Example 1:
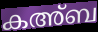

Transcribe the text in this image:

കഅ്ബ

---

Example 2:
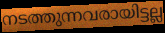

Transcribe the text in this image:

നടത്തുന്നവരായിട്ടല്ല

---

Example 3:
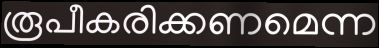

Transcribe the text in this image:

രൂപീകരിക്കണമെന്ന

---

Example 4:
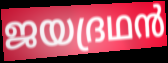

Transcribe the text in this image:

ജയദ്രഥൻ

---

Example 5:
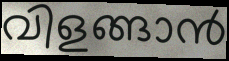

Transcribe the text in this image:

വിളങ്ങാൻ